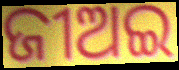
ଜୀଅଇ